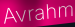
Avrahm